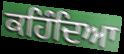
ਕਹਿੰਦਿਆ